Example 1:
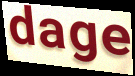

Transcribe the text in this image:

dage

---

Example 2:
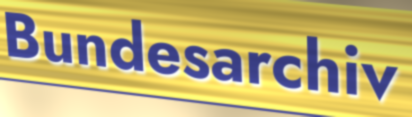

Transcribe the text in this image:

Bundesarchiv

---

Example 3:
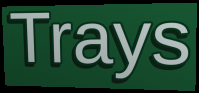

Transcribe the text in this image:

Trays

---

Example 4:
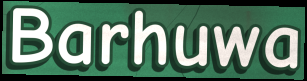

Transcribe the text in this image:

Barhuwa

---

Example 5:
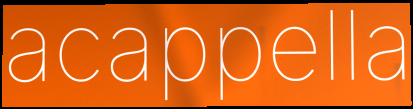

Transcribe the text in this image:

acappella